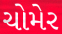
ચોમેર